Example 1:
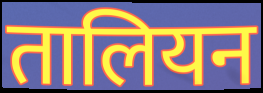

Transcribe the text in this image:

तालियन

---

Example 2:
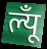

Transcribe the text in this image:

ल्यूँ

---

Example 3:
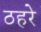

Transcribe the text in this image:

ठहरे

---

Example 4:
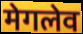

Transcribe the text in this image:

मेगलेव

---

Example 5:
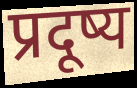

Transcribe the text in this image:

प्रदूष्य